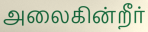
அலைகின்றீர்